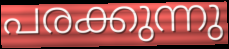
പരക്കുന്നു